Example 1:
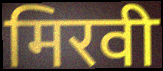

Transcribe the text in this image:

मिरवी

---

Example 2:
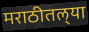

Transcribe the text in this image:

मराठीतल्या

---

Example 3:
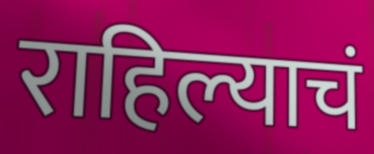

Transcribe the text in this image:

राहिल्याचं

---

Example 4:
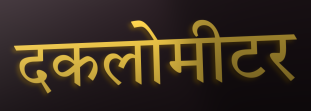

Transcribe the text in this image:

दकलोमीटर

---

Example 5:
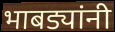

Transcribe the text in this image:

भाबड्यांनी